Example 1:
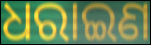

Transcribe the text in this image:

ଧରାଇଣ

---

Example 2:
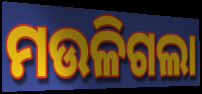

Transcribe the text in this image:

ମଉଳିଗଲା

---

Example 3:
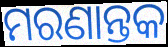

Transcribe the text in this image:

ମରଣାନ୍ତକ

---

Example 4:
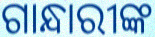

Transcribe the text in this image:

ଗାନ୍ଧାରୀଙ୍କ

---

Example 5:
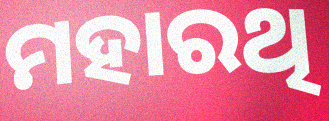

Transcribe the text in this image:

ମହାରଥି